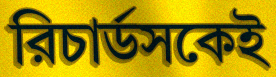
রিচার্ডসকেই